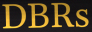
DBRs